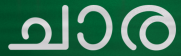
ചാര